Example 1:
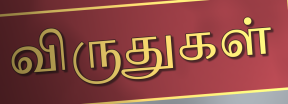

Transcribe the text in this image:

விருதுகள்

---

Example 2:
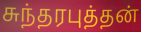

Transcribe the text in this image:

சுந்தரபுத்தன்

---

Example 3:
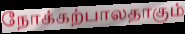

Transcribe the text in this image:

நோக்கற்பாலதாகும்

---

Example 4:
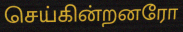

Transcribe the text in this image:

செய்கின்றனரோ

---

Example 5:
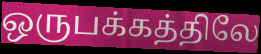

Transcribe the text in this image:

ஒருபக்கத்திலே